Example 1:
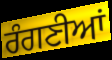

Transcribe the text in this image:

ਰੰਗਣੀਆਂ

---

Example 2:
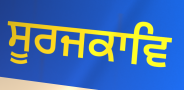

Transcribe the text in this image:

ਸੂਰਜਕਾਵਿ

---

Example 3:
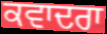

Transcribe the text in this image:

ਕਵਾਦਰਾ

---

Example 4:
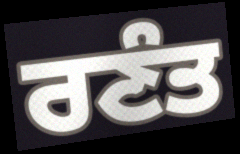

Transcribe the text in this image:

ਰਣੰਤ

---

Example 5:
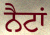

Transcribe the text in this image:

ਨੈਟਾਂ